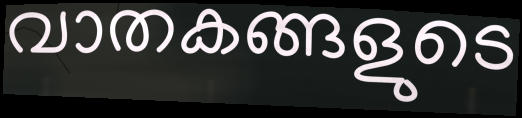
വാതകങ്ങളുടെ